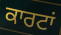
ਕਾਰਟਾਂ